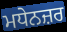
ਮਧੇਨਜ਼ਰ